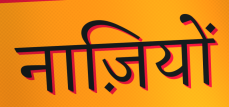
नाज़ियों